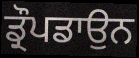
ਡ੍ਰੌਪਡਾਉਨ